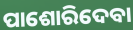
ପାଶୋରିଦେବା